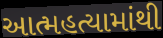
આત્મહત્યામાંથી